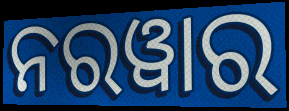
ନରୱାର